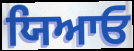
ਯਿਆਓ